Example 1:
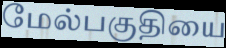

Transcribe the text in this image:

மேல்பகுதியை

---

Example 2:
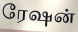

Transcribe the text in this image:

ரேஷன்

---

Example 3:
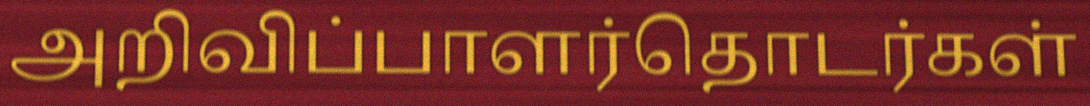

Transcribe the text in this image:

அறிவிப்பாளர்தொடர்கள்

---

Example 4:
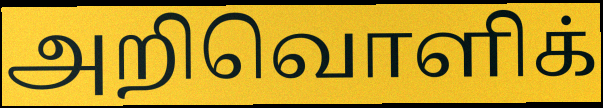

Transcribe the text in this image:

அறிவொளிக்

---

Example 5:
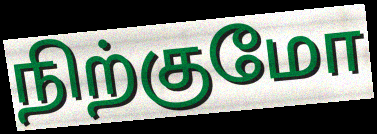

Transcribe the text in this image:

நிற்குமோ